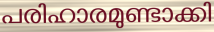
പരിഹാരമുണ്ടാക്കി